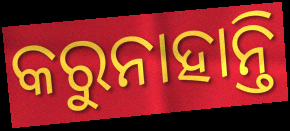
କରୁନାହାନ୍ତି